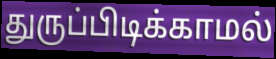
துருப்பிடிக்காமல்